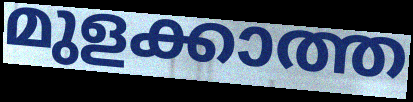
മുളക്കാത്ത